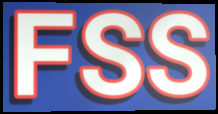
FSS